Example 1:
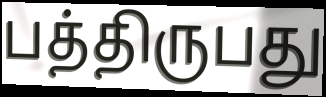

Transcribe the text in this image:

பத்திருபது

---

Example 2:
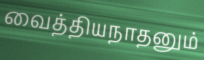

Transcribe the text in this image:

வைத்தியநாதனும்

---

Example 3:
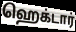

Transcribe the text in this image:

ஹெக்டார்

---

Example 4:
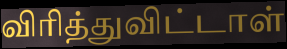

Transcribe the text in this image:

விரித்துவிட்டாள்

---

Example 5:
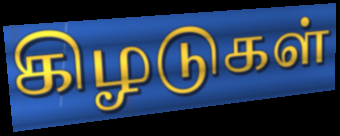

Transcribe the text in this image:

கிழடுகள்